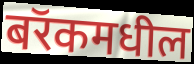
बरॅकमधील